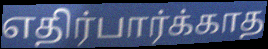
எதிர்பார்க்காத